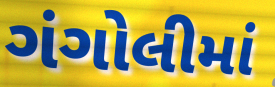
ગંગોલીમાં